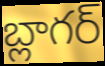
బ్లాగర్